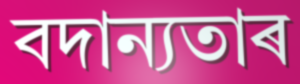
বদান্যতাৰ